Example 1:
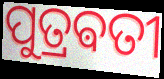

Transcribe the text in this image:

ପୁତ୍ରଵତୀ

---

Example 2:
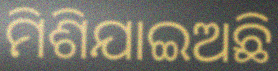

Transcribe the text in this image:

ମିଶିଯାଇଅଛି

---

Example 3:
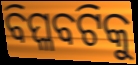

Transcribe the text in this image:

ବିପ୍ଳବଟିକୁ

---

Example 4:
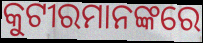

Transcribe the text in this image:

କୁଟୀରମାନଙ୍କରେ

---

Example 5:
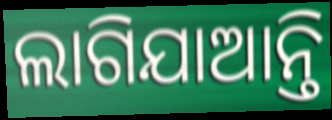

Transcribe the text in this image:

ଲାଗିଯାଆନ୍ତି